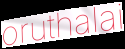
oruthalai